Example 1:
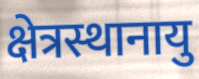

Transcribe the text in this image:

क्षेत्रस्थानायु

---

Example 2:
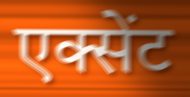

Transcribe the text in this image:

एक्सेंट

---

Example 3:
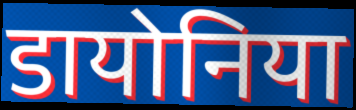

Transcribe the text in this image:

डायोनिया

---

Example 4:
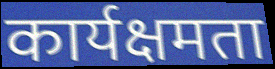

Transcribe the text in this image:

कार्यक्षमता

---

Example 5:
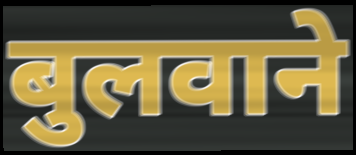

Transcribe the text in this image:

बुलवाने